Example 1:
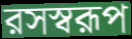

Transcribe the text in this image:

রসস্বরূপ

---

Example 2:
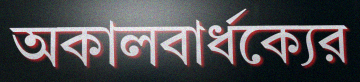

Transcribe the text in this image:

অকালবার্ধক্যের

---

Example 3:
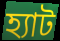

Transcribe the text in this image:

হ্যাট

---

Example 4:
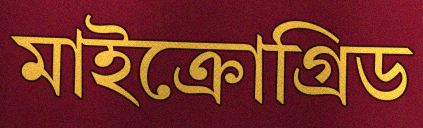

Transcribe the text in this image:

মাইক্রোগ্রিড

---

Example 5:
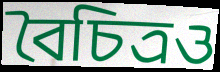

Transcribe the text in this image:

বৈচিত্রও